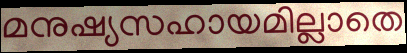
മനുഷ്യസഹായമില്ലാതെ